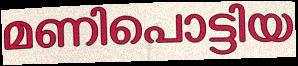
മണിപൊട്ടിയ